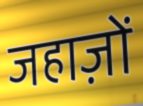
जहाज़ों